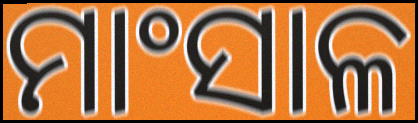
ମାଂସାଳ